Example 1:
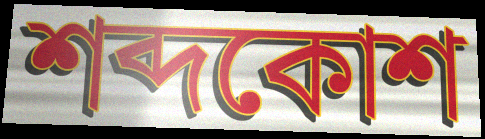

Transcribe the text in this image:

শব্দকোশ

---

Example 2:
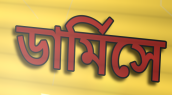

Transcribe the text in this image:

ডার্মিসে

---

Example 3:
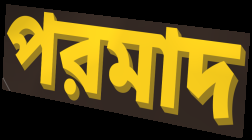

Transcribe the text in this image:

পরমাদ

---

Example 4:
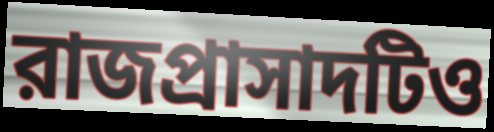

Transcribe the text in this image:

রাজপ্রাসাদটিও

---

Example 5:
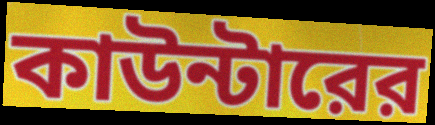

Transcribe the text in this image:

কাউন্টারের